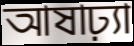
আষাঢ়্যা